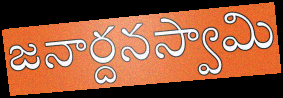
జనార్దనస్వామి